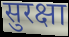
सुरक्षा